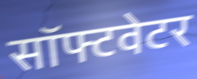
सॉफ्टवेटर